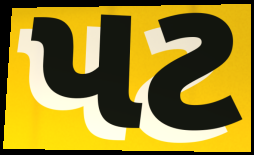
પટ